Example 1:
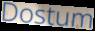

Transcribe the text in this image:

Dostum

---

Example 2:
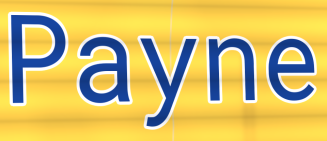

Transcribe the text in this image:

Payne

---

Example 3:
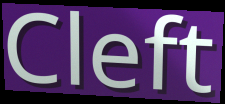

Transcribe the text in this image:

Cleft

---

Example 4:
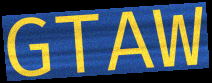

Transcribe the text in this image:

GTAW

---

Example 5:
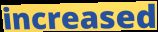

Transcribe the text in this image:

increased